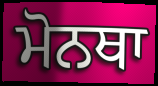
ਮੋਨਥਾ